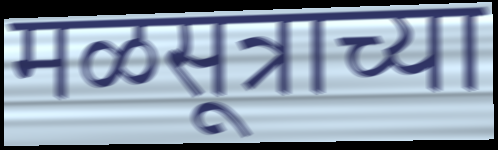
मळसूत्राच्या